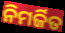
ନିମର୍ଜିତ